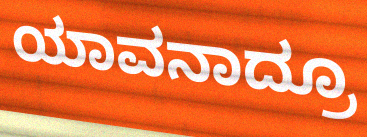
ಯಾವನಾದ್ರೂ